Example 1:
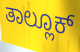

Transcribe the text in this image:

ತಾಲ್ಲೂಕ್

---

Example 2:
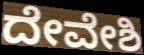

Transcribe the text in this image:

ದೇವೇಶಿ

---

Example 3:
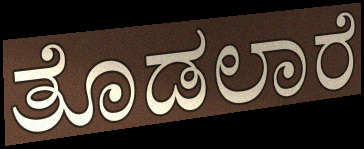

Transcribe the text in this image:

ತೊಡಲಾರೆ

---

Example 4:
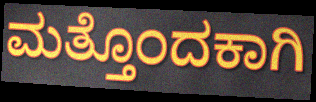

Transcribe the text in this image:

ಮತ್ತೊಂದಕಾಗಿ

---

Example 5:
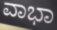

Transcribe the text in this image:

ವಾಭಾ